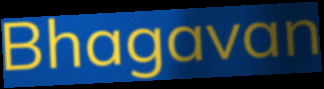
Bhagavan